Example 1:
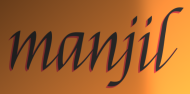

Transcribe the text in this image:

manjil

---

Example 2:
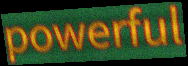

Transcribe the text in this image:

powerful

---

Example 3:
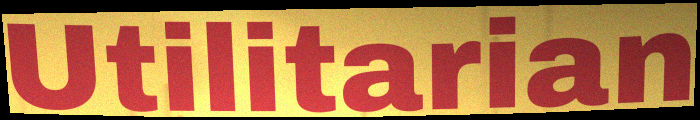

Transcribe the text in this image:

Utilitarian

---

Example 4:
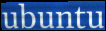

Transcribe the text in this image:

ubuntu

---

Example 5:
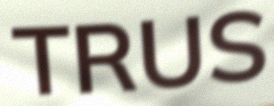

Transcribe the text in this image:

TRUS